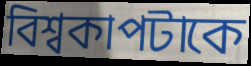
বিশ্বকাপটাকে